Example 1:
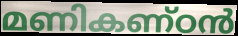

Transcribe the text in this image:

മണികണ്ഠൻ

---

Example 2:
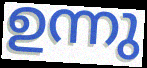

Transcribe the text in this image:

ഉന്നു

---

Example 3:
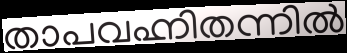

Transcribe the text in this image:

താപവഹ്നിതന്നിൽ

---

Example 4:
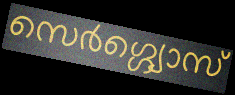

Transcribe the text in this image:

സെർഗ്ഗ്യൊസ്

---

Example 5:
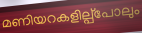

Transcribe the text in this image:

മണിയറകളില്പ്പോലും